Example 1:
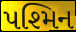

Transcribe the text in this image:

પશ્મિન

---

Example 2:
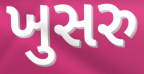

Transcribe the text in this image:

ખુસરુ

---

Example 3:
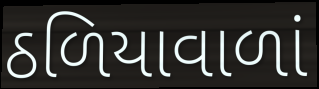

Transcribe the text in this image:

ઠળિયાવાળાં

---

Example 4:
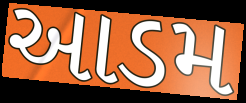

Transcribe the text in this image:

આડમ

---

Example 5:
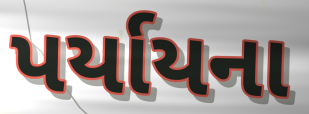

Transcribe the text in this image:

પર્યાયના